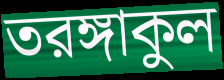
তরঙ্গাকুল